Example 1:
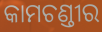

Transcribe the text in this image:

କାମଚଣ୍ଡୀର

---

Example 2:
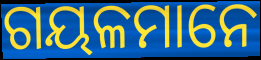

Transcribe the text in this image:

ଗୟଳମାନେ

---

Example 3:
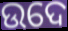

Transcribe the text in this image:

ଉଦେ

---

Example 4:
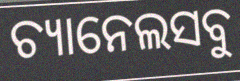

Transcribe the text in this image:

ଚ୍ୟାନେଲସବୁ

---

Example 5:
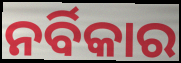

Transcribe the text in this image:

ନର୍ବିକାର